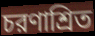
চরণাশ্রিত